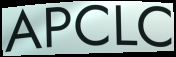
APCLC